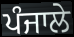
ਪੰਜਾਲੇ